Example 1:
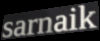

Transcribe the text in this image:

sarnaik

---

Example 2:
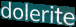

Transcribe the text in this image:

dolerite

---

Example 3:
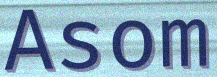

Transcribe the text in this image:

Asom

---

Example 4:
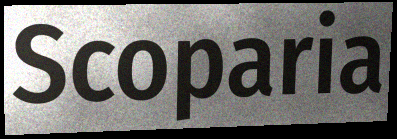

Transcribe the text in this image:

Scoparia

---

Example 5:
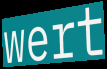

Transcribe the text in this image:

wert